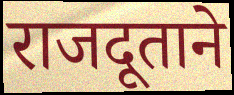
राजदूताने